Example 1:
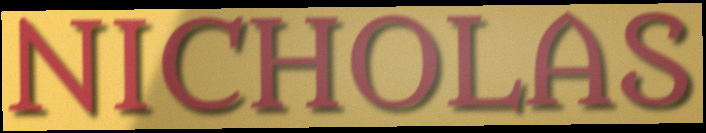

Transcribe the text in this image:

NICHOLAS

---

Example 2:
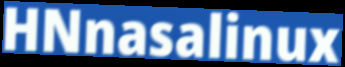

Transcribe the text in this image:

HNnasalinux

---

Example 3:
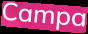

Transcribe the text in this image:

Campa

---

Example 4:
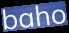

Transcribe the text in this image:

baho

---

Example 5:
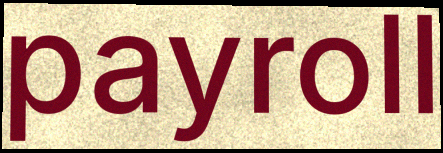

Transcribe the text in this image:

payroll